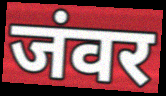
जंवर